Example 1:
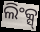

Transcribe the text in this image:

ଲିଂକ୍ସ୍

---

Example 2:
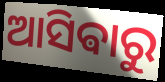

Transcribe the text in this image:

ଆସିଵାରୁ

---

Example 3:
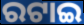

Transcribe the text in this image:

ରଟାଇ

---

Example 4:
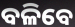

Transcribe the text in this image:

ବଳିବେ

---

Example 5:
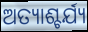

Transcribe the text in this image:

ଅତ୍ୟାଶ୍ଚର୍ଯ୍ୟ